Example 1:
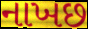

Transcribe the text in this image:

નાખછ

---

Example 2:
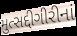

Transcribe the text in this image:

મુત્સદ્દીગીરીનાં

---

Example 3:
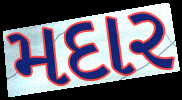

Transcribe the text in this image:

મદાર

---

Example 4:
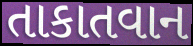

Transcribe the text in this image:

તાકાતવાન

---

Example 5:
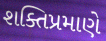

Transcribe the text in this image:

શક્તિપ્રમાણે